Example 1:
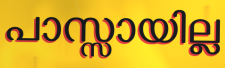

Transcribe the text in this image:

പാസ്സായില്ല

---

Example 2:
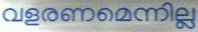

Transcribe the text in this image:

വളരണമെന്നില്ല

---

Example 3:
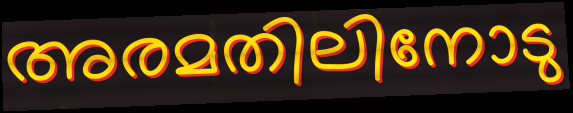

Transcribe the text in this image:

അരമതിലിനോടു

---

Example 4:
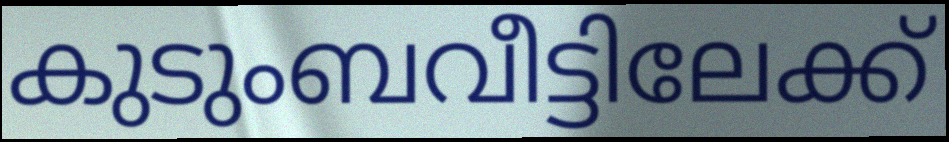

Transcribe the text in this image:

കുടുംബവീട്ടിലേക്ക്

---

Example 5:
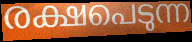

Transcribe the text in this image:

രക്ഷപെടുന്ന